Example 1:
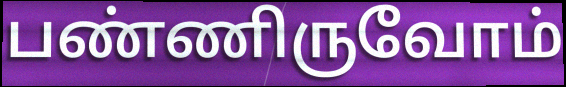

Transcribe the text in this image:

பண்ணிருவோம்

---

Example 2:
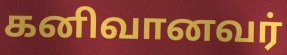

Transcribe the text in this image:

கனிவானவர்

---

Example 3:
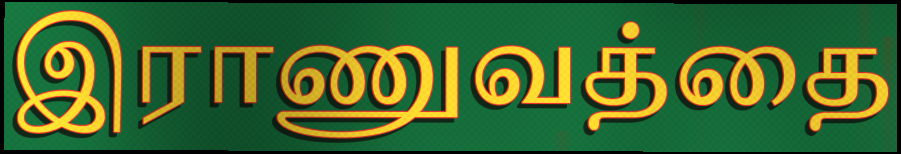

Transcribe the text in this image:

இராணுவத்தை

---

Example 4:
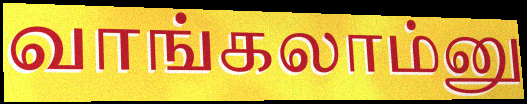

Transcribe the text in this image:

வாங்கலாம்னு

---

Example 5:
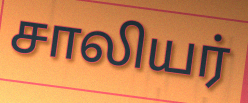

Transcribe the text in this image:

சாலியர்